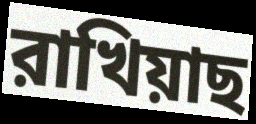
রাখিয়াছ